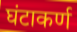
घंटाकर्ण